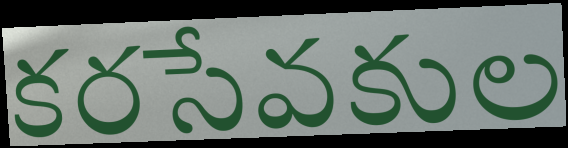
కరసేవకుల